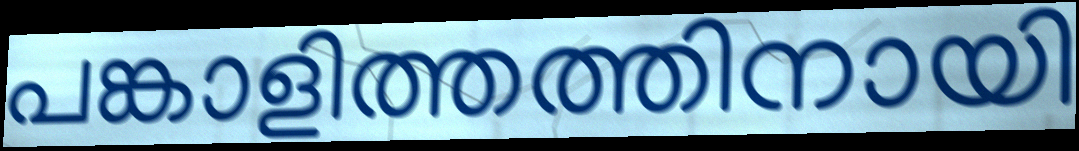
പങ്കാളിത്തത്തിനായി